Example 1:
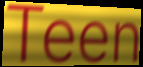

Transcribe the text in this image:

Teen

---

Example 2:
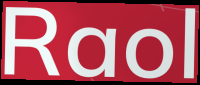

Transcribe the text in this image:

Raol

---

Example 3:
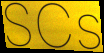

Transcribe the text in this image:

SCs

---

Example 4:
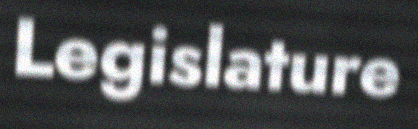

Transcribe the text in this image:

Legislature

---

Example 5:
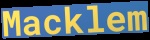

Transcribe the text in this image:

Macklem